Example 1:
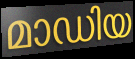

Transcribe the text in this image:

മാഡിയ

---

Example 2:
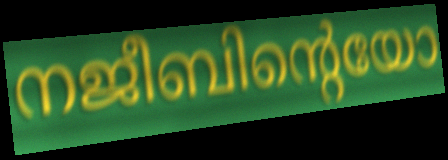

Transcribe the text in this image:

നജീബിന്റെയോ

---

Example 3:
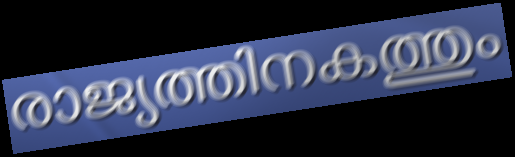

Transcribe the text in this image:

രാജ്യത്തിനകത്തും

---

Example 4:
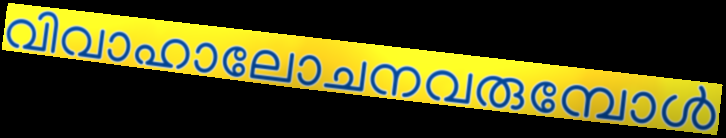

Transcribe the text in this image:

വിവാഹാലോചനവരുമ്പോൾ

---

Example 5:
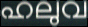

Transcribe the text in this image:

ഹലുവ